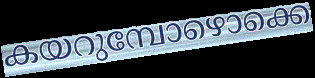
കയറുമ്പോഴൊക്കെ